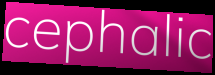
cephalic